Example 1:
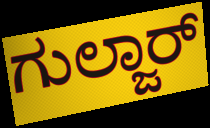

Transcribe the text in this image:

ಗುಲ್ಜಾರ್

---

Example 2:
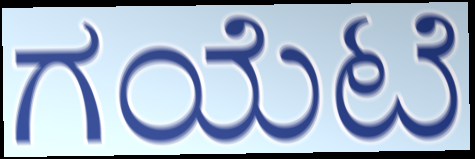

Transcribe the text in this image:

ಗಯೆಟೆ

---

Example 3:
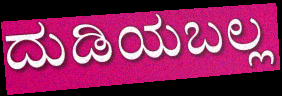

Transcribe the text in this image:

ದುಡಿಯಬಲ್ಲ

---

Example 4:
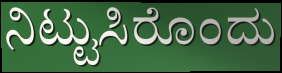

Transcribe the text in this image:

ನಿಟ್ಟುಸಿರೊಂದು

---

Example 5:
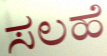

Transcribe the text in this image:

ಸಲಹೆ